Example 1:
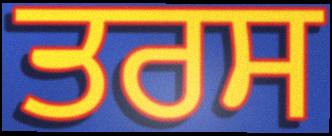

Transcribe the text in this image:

ਤਰਸ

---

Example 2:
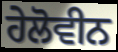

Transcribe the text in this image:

ਹੇਲੋਵੀਨ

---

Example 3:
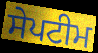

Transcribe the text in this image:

ਸੇਪਟੀਮ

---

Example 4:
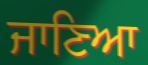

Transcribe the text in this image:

ਜਾਣਿਆ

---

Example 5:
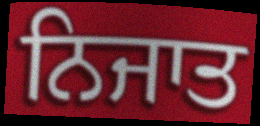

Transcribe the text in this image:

ਨਿਜਾਤ